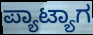
ಪ್ಯಾಟ್ಯಾಗ